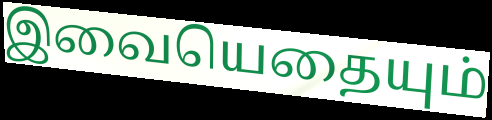
இவையெதையும்